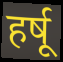
हर्षू